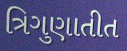
ત્રિગુણાતીત